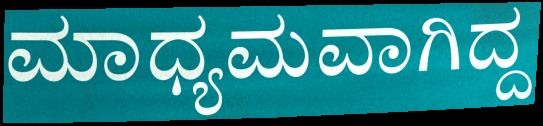
ಮಾಧ್ಯಮವಾಗಿದ್ದ